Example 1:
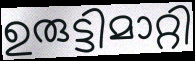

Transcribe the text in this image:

ഉരുട്ടിമാറ്റി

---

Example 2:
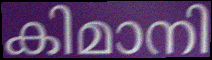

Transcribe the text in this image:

കിമാനി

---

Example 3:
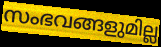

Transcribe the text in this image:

സംഭവങ്ങളുമില്ല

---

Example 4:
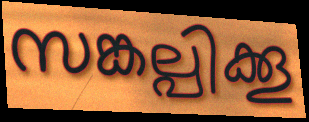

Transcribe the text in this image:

സങ്കല്പിക്കൂ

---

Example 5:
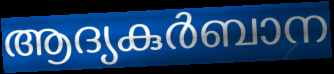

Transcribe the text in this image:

ആദ്യകുർബാന